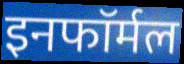
इनफॉर्मल